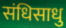
संधिसाधु